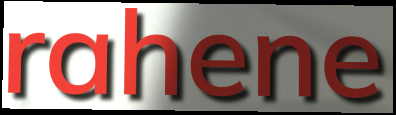
rahene